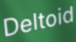
Deltoid